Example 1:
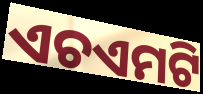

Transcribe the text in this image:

ଏଚଏମଟି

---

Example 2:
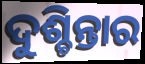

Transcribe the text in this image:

ଦୁଶ୍ଚିନ୍ତାର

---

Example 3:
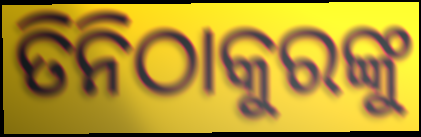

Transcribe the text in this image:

ତିନିଠାକୁରଙ୍କୁ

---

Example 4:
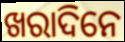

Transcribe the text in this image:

ଖରାଦିନେ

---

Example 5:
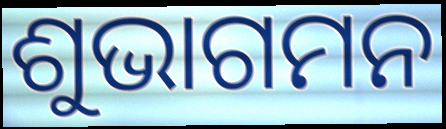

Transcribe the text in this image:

ଶୁଭାଗମନ